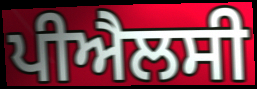
ਪੀਐਲਸੀ